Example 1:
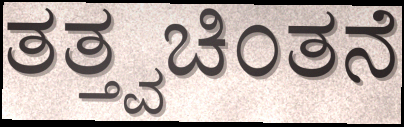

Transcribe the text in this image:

ತತ್ತ್ವಚಿಂತನೆ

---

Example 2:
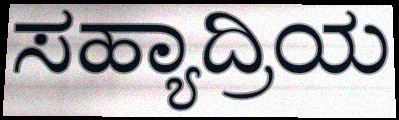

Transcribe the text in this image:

ಸಹ್ಯಾದ್ರಿಯ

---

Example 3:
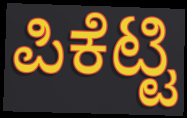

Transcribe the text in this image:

ಪಿಕೆಟ್ಟಿ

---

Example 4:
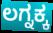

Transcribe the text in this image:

ಲಗ್ನಕ್ಕ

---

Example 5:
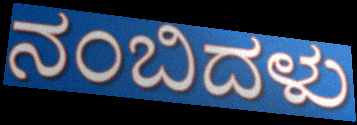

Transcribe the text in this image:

ನಂಬಿದಳು